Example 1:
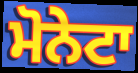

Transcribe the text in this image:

ਮੋਨੇਟਾ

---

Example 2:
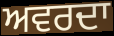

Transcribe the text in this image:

ਅਵਰਦਾ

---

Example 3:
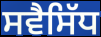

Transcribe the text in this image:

ਸਵੈਸਿੱਧ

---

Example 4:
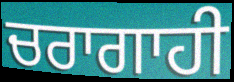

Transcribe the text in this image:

ਚਰਾਗਾਹੀ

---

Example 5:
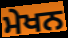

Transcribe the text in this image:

ਮੇਖਨ